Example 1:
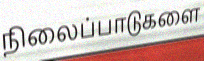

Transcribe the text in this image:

நிலைப்பாடுகளை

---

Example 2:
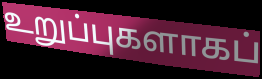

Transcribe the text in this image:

உறுப்புகளாகப்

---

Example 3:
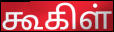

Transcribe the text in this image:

கூகிள்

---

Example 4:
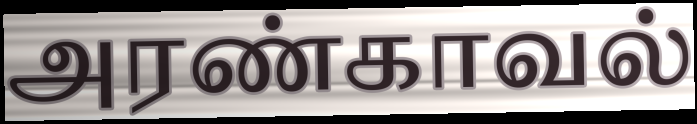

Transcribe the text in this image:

அரண்காவல்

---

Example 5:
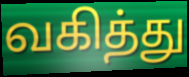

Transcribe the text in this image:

வகித்து